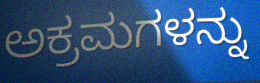
ಅಕ್ರಮಗಳನ್ನು